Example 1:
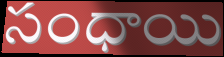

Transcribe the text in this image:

సంధాయి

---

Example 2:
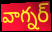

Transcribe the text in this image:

వాగ్నర్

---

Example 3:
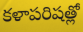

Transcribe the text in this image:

కళాపరిషత్లో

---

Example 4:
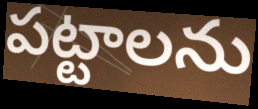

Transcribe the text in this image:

పట్టాలను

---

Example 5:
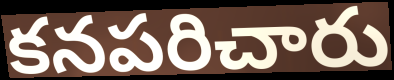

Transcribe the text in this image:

కనపరిచారు